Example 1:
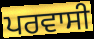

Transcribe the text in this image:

ਪਰਵਾਸੀ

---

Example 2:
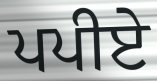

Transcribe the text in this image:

ਪਪੀਏ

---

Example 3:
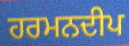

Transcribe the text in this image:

ਹਰਮਨਦੀਪ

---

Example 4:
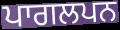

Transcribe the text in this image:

ਪਾਗਲਪਨ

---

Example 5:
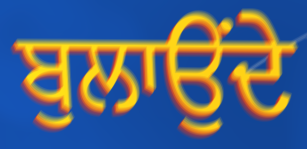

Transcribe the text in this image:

ਬੁਲਾਉਂਦੇ